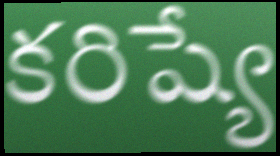
కరిష్యే